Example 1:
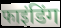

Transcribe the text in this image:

फाइंडिंग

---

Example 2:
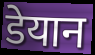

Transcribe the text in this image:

डेयान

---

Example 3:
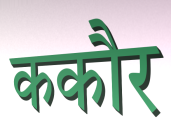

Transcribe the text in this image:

ककौर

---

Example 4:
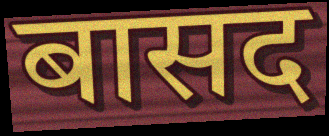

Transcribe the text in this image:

बासद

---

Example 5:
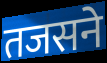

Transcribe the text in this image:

तजसने